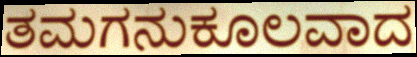
ತಮಗನುಕೂಲವಾದ